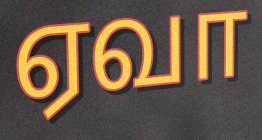
ஏவா